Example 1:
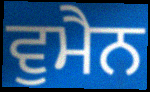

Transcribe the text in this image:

ਵੁਮੈਨ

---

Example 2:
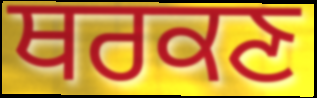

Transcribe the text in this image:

ਥਰਕਣ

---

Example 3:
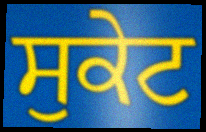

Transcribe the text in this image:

ਸੁਕੇਟ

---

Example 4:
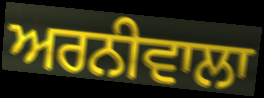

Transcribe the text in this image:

ਅਰਨੀਵਾਲਾ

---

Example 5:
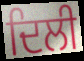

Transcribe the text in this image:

ਦਿਲੀ